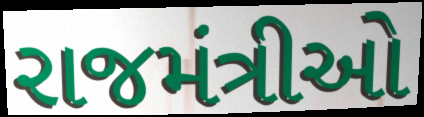
રાજમંત્રીઓ